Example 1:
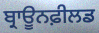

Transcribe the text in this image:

ਬ੍ਰਾਊਨਫ਼ੀਲਡ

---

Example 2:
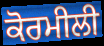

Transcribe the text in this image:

ਕੋਰਮੀਲੀ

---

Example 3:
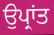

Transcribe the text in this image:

ਉਪ੍ਰਾਂਤ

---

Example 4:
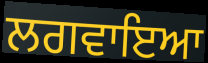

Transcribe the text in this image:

ਲਗਵਾਇਆ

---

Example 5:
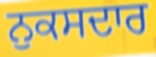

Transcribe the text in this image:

ਨੁਕਸਦਾਰ